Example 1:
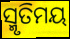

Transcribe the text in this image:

ସ୍ମୃତିମୟ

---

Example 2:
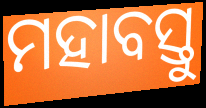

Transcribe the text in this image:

ମହାବସ୍ତୁ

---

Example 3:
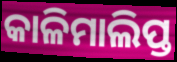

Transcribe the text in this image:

କାଳିମାଲିପ୍ତ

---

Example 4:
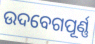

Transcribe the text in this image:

ଉଦବେଗପୂର୍ଣ୍ଣ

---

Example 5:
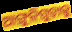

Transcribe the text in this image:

ଆଙ୍ଗୁଳିଗୁଡ଼ାକୁ